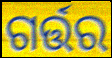
ଗର୍ତ୍ତର